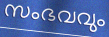
സംഭവവും